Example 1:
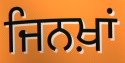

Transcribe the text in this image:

ਜਿਨਖ਼ਾਂ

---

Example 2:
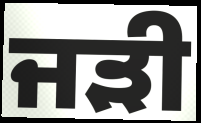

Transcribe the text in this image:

ਜੜੀ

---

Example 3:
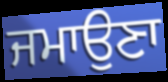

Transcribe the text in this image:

ਜਮਾਉਣਾ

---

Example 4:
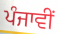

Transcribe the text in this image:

ਪੰਜਾਵੀਂ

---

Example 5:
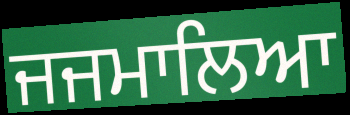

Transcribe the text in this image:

ਜਜਮਾਲਿਆ